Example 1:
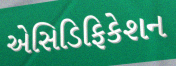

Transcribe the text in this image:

એસિડિફિકેશન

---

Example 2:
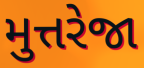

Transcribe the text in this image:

મુત્તરેજા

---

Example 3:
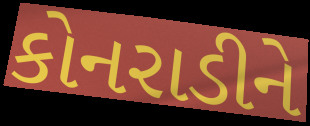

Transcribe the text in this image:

કોનરાડીને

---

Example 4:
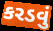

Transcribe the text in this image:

કરડવું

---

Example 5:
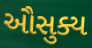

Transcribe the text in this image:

ઔસુક્ય